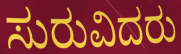
ಸುರುವಿದರು